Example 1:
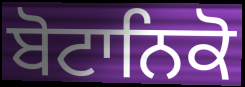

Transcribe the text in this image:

ਬੋਟਾਨਿਕੋ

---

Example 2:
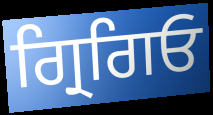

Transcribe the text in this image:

ਗ੍ਰਿਗਿਓ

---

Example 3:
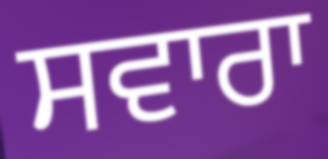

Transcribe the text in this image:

ਸਵਾਰਾ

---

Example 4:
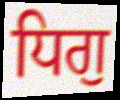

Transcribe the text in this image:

ਧਿਗੁ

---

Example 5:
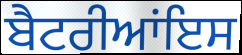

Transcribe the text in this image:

ਬੈਟਰੀਆਂਇਸ